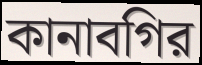
কানাবগির